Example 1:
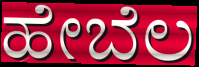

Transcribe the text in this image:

ಹೇಬೆಲ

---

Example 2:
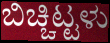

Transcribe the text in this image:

ಬಿಚ್ಚಿಟ್ಟಳು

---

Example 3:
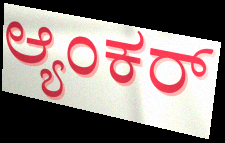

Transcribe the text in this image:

ಆ್ಯಂಕರ್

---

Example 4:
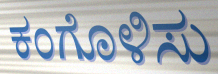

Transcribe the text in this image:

ಕಂಗೊಳಿಸು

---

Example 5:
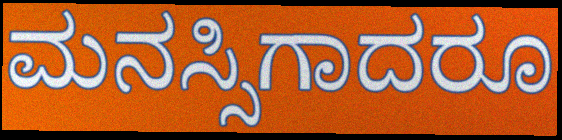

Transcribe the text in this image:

ಮನಸ್ಸಿಗಾದರೂ